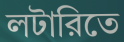
লটারিতে